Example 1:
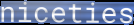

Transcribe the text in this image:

niceties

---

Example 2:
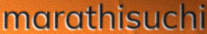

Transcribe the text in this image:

marathisuchi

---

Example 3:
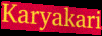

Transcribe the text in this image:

Karyakari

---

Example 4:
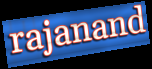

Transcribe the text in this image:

rajanand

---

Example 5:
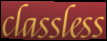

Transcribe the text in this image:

classless